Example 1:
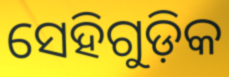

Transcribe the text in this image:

ସେହିଗୁଡ଼ିକ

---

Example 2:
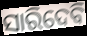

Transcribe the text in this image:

ସାରିଦେବି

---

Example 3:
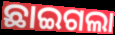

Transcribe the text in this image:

ଛାଇଗଲା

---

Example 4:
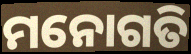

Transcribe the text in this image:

ମନୋଗତି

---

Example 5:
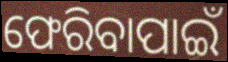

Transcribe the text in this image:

ଫେରିବାପାଇଁ